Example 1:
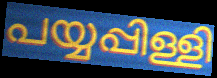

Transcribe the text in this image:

പയ്യപ്പിള്ളി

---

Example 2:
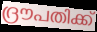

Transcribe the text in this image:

ദ്രൗപതിക്ക്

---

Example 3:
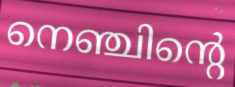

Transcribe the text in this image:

നെഞ്ചിന്റെ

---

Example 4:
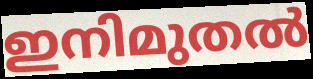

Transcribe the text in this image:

ഇനിമുതൽ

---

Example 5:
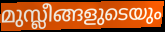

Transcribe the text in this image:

മുസ്ലീങ്ങളുടെയും